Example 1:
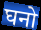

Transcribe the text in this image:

घनो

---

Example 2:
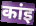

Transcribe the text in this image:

कांइ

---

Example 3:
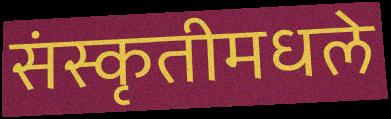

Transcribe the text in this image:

संस्कृतीमधले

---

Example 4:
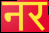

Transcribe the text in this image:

नर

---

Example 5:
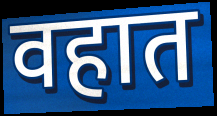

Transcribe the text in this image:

वहात